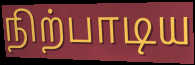
நிற்பாடிய